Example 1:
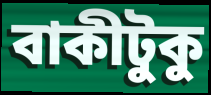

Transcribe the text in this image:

বাকীটুকু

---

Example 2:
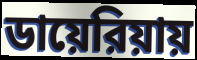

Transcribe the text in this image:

ডায়েরিয়ায়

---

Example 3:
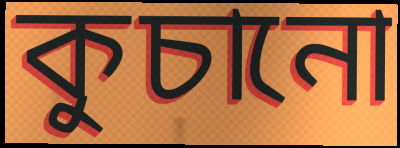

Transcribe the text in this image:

কুচানো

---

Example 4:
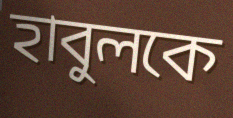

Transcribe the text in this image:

হাবুলকে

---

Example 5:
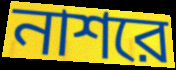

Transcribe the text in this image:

নাশরে